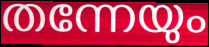
തന്നേയും